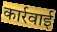
कार्रवाई